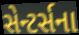
સેન્ટર્સના